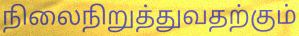
நிலைநிறுத்துவதற்கும்